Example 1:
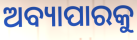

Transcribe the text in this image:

ଅବ୍ୟାପାରକୁ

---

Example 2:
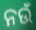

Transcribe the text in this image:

ନଉଁ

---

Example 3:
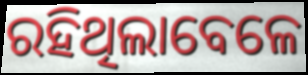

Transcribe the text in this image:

ରହିଥିଲାବେଳେ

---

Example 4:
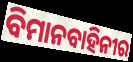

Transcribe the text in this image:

ବିମାନବାହିନୀର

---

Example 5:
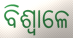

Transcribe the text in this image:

ବିଶ୍ଵାଳେ